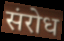
संरोध